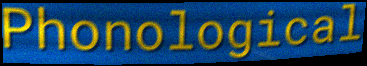
Phonological